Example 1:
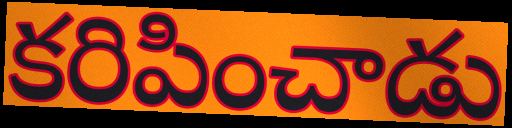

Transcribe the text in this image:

కరిపించాడు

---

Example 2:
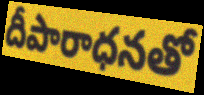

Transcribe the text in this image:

దీపారాధనతో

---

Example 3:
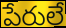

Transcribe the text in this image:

పేరులే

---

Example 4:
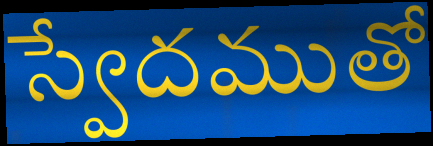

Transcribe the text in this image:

స్వేదముతో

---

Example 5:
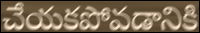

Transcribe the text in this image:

చేయకపోవడానికి